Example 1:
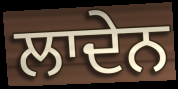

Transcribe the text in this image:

ਲਾਦੇਨ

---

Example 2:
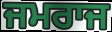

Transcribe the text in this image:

ਜਮਰਾਜ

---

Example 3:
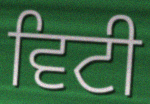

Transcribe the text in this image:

ਵਿਟੀ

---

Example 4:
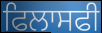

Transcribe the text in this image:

ਫਿਲਾਸਫੀ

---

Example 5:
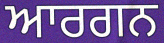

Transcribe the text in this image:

ਆਰਗਨ